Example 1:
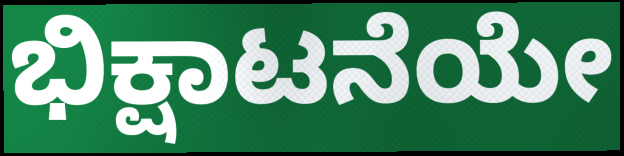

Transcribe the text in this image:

ಭಿಕ್ಷಾಟನೆಯೇ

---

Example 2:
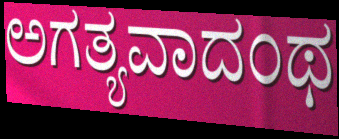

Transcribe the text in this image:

ಅಗತ್ಯವಾದಂಥ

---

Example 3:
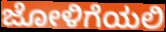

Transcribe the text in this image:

ಜೋಳಿಗೆಯಲಿ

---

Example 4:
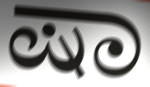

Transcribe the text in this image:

ಷಾ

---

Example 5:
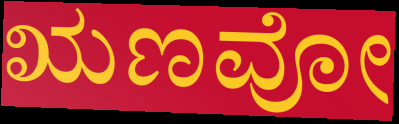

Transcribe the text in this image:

ಋಣವೋ